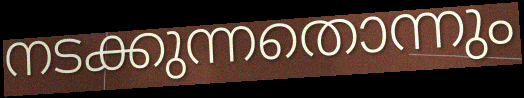
നടക്കുന്നതൊന്നും